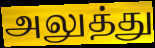
அலுத்து